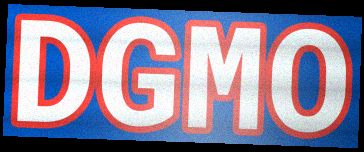
DGMO